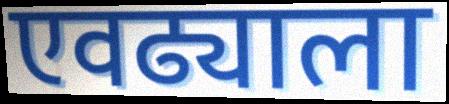
एवढ्याला